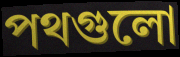
পথগুলো